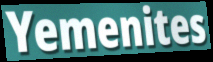
Yemenites